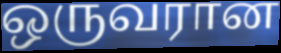
ஒருவரான